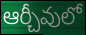
ఆర్చీవులో